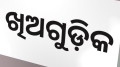
ଖିଅଗୁଡ଼ିକ